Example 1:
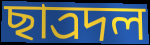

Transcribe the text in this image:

ছাত্রদল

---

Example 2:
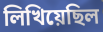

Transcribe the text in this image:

লিখিয়েছিল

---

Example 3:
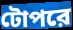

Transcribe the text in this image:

টোপরে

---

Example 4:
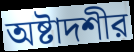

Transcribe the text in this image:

অষ্টাদশীর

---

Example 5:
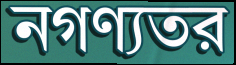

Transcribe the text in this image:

নগণ্যতর